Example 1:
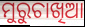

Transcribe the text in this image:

ମୁରୁଚାଖିଆ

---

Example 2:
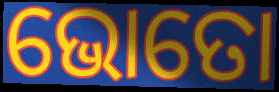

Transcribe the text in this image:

ଭୋତୋ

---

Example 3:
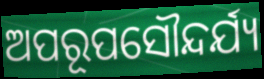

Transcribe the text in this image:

ଅପରୂପସୌନ୍ଦର୍ଯ୍ୟ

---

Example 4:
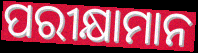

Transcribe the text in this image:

ପରୀକ୍ଷାମାନ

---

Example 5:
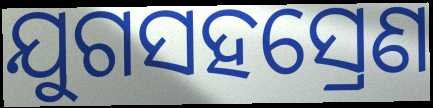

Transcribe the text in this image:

ଯୁଗସହସ୍ରେଣ